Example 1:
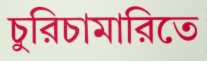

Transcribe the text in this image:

চুরিচামারিতে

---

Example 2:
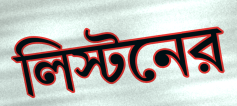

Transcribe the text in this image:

লিস্টনের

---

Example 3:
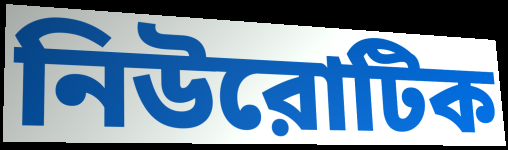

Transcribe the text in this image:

নিউরোটিক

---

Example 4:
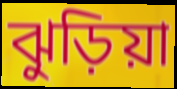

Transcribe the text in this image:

ঝুড়িয়া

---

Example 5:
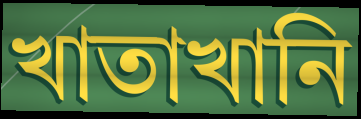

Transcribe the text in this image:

খাতাখানি